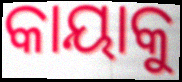
କାୟାକୁ